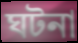
ঘটনা